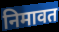
निमावत